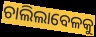
ଚାଲିଲାବେଳକୁ